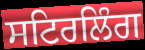
ਸਟਿਰਲਿੰਗ